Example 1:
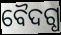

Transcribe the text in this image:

ବୈଦଗ୍ଧ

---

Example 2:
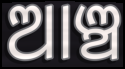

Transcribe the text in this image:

ଆଞ୍ଚ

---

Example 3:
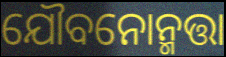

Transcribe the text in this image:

ଯୌବନୋନ୍ମତ୍ତା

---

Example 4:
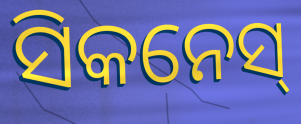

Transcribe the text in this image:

ସିକନେସ୍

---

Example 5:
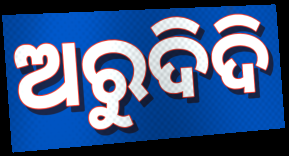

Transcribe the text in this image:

ଅରୁଦିଦି